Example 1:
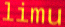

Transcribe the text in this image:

limu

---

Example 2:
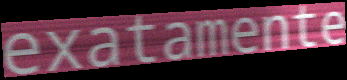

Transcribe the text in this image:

exatamente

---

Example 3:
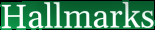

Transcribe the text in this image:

Hallmarks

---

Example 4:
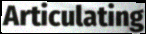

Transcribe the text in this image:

Articulating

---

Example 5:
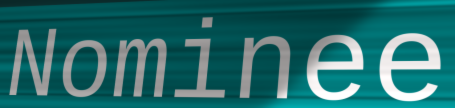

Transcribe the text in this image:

Nominee